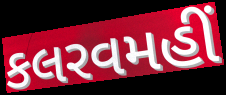
કલરવમહીં